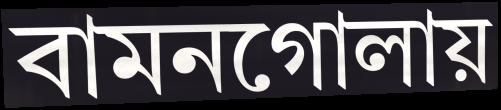
বামনগোলায়